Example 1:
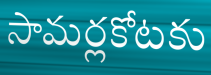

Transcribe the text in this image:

సామర్లకోటకు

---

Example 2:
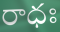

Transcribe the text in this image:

రాధః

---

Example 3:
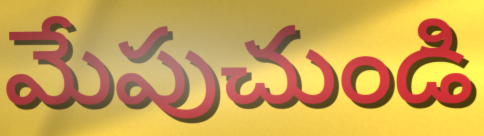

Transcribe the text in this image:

మేపుచుండి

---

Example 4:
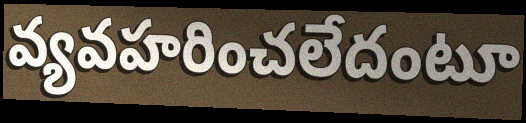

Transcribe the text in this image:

వ్యవహరించలేదంటూ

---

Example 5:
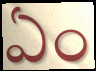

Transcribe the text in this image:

ఏం